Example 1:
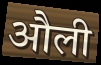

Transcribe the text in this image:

औली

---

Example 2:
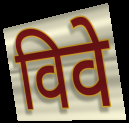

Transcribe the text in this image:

विवे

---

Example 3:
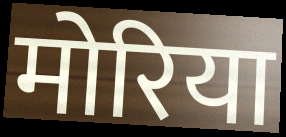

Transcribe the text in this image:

मोरिया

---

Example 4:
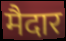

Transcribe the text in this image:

मैदार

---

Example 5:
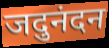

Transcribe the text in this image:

जदुनंदन